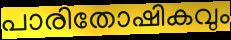
പാരിതോഷികവും